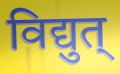
विद्युत्